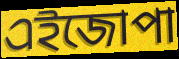
এইজোপা